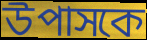
উপাসকে